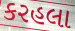
કરહલા